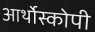
आर्थोस्कोपी